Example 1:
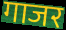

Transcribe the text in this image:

गाजर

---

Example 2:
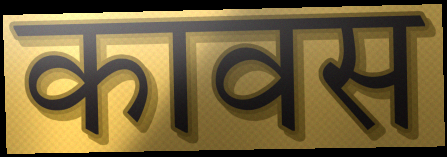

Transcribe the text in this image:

कावस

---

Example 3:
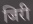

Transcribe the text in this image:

जिरी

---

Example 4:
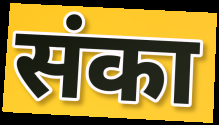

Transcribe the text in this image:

संका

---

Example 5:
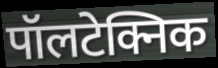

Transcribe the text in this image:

पॉलटेक्निक